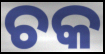
ଚକ